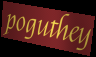
poguthey